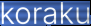
koraku